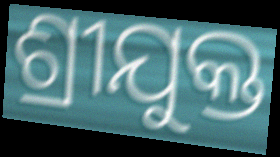
ଶ୍ରୀଯୁକ୍ତ